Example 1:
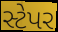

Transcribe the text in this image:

સ્ટેપર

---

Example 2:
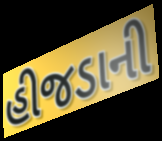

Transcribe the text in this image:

હીજડાની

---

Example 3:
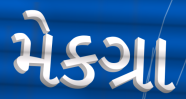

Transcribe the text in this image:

મેકગ્રા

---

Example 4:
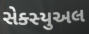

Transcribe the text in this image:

સેક્સ્યુઅલ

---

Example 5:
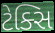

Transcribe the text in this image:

ટેક્સિ